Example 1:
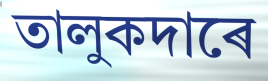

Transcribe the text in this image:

তালুকদাৰে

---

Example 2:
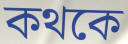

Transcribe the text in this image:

কথকে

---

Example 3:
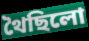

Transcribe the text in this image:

থৈছিলো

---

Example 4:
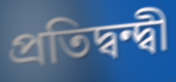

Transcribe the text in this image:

প্ৰতিদ্বন্দ্বী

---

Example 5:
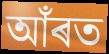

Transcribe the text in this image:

আঁৰত